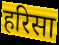
हरिसा